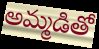
అమ్మడితో